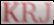
KRJ